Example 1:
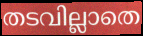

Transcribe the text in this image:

തടവില്ലാതെ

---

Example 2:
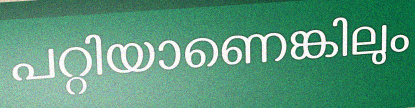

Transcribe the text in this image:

പറ്റിയാണെങ്കിലും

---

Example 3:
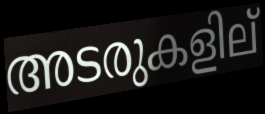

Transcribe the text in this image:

അടരുകളില്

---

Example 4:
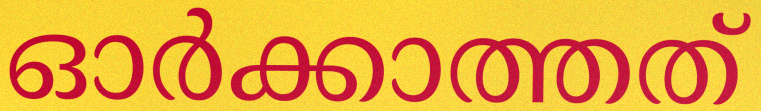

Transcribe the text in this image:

ഓർക്കാത്തത്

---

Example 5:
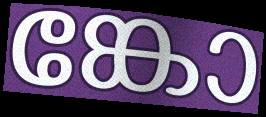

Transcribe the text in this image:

ങ്കോ